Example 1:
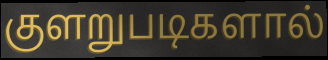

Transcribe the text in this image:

குளறுபடிகளால்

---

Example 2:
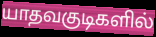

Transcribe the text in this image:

யாதவகுடிகளில்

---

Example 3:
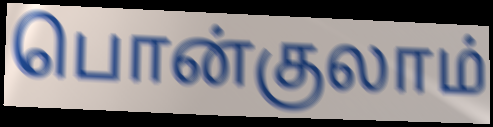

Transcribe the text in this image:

பொன்குலாம்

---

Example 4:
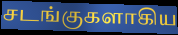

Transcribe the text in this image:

சடங்குகளாகிய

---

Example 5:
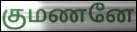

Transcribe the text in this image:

குமணனே